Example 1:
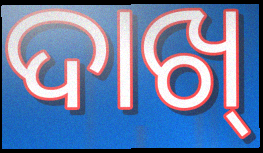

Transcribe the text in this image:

ଦାଖ୍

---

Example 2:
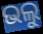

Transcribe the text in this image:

ଭଲୁ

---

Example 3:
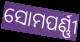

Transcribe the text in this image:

ସୋମପର୍ଣ୍ଣୀ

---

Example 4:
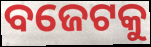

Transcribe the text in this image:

ବଜେଟକୁ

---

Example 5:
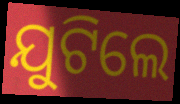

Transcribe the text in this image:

ଯୁଟିଲେ